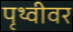
पृथ्वीवर